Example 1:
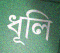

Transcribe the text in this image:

ধূলি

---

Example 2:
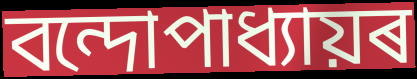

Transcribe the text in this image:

বন্দোপাধ্যায়ৰ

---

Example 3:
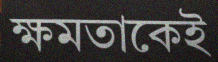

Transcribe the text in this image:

ক্ষমতাকেই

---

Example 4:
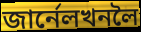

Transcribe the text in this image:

জাৰ্নেলখনলৈ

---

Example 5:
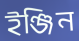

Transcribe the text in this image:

ইঞ্জিন